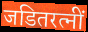
जडितरत्नीं